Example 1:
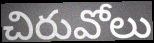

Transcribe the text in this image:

చిరువోలు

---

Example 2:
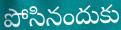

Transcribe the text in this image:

పోసినందుకు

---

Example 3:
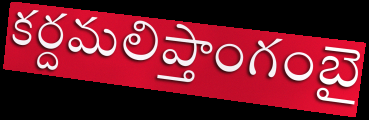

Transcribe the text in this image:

కర్దమలిప్తాంగంబై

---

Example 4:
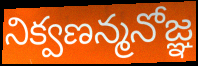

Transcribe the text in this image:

నిక్వణన్మనోజ్ఞ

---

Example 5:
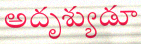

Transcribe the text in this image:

అదృశ్యుడూ